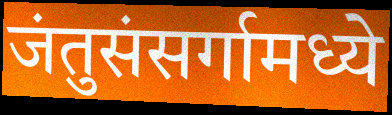
जंतुसंसर्गामध्ये